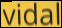
vidal